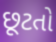
છૂટતો